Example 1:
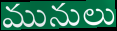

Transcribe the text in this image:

మునులు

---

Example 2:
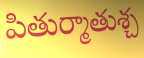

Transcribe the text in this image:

పితుర్మాతుశ్చ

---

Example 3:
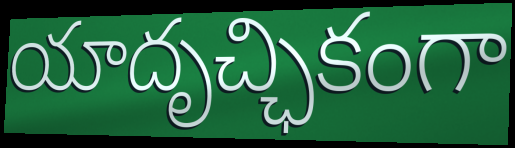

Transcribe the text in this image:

యాదృచ్ఛికంగా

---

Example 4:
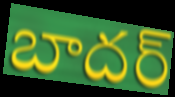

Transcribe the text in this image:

బాదర్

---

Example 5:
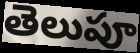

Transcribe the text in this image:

తెలుపూ